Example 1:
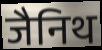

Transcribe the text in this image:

जैनिथ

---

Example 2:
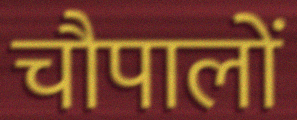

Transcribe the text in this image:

चौपालों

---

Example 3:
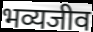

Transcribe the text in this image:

भव्यजीव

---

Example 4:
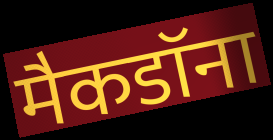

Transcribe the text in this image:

मैकडॉना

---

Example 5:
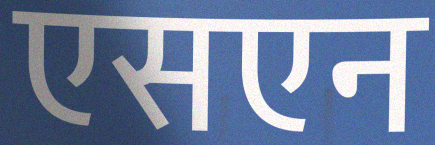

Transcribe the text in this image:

एसएन